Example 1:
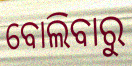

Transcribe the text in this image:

ବୋଲିବାରୁ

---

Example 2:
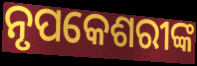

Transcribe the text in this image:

ନୃପକେଶରୀଙ୍କ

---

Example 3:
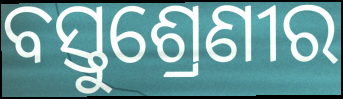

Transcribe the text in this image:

ବସ୍ତୁଶ୍ରେଣୀର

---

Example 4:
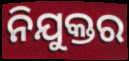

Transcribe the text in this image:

ନିଯୁକ୍ତର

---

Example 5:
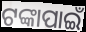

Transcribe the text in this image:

ଟଙ୍କାପାଇଁ